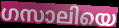
ഗസാലിയെ